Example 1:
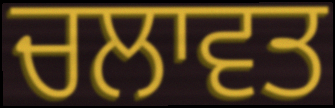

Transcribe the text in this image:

ਚਲਾਵਤ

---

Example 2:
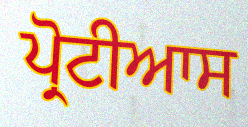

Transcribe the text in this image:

ਪ੍ਰੋਟੀਆਸ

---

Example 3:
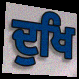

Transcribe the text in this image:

ਦੁਖਿ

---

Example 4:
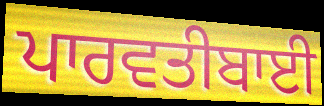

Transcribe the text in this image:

ਪਾਰਵਤੀਬਾਈ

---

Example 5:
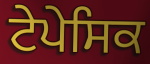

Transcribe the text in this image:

ਟੇਪੇਸਿਕ